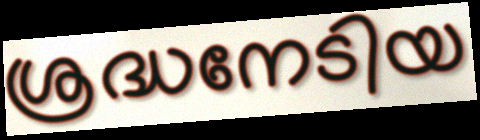
ശ്രദ്ധനേടിയ